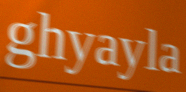
ghyayla